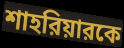
শাহরিয়ারকে